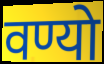
वण्यो